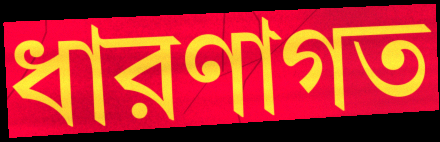
ধারণাগত